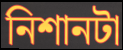
নিশানটা